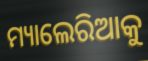
ମ୍ୟାଲେରିଆକୁ